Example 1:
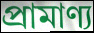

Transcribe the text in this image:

প্রামাণ্য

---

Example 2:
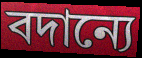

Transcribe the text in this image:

বদান্যে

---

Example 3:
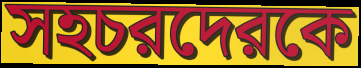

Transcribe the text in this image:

সহচরদেরকে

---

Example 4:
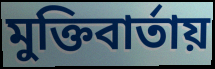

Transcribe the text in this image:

মুক্তিবার্তায়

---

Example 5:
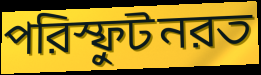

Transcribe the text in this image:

পরিস্ফুটনরত